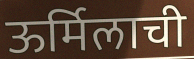
ऊर्मिलाची